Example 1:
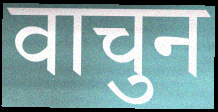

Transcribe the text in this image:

वाचुन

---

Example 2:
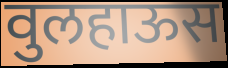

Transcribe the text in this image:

वुलहाऊस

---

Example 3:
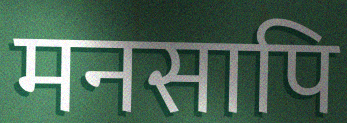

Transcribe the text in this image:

मनसापि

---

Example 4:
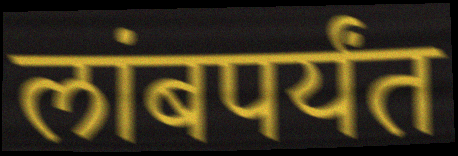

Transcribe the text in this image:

लांबपर्यंत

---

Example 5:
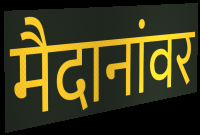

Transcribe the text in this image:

मैदानांवर